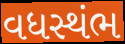
વધસ્થંભ